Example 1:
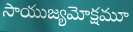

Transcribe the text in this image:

సాయుజ్యమోక్షమూ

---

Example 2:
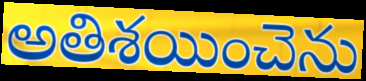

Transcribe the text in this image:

అతిశయించెను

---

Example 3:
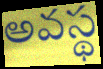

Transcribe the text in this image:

అవస్థ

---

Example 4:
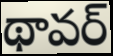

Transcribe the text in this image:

థావర్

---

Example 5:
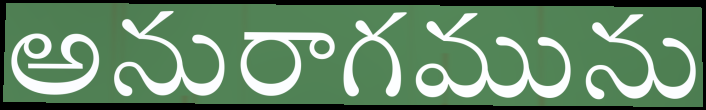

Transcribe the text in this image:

అనురాగమును